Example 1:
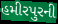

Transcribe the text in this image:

હમીરપુરની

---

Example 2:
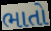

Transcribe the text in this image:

ભાતો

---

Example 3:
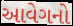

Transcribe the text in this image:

આવેગનો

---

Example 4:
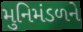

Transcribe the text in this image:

મુનિમંડળને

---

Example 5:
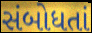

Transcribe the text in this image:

સંબોધતાં